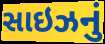
સાઇઝનું